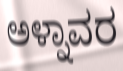
ಅಳ್ನಾವರ